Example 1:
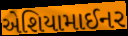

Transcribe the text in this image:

એશિયામાઈનર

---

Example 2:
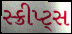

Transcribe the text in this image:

સ્ક્રીપ્ટ્સ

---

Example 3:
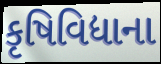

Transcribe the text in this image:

કૃષિવિદ્યાના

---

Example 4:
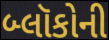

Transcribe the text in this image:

બ્લૉકોની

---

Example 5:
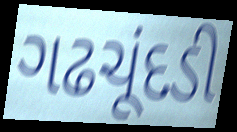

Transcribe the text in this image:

ગઢચૂંદડી